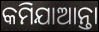
କମିଯାଆନ୍ତା